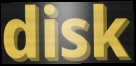
disk